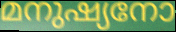
മനുഷ്യനോ